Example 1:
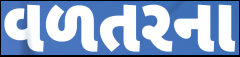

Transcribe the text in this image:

વળતરના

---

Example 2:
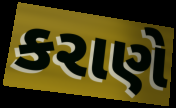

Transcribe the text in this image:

કરાણે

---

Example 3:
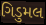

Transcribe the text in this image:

ગિડુમલ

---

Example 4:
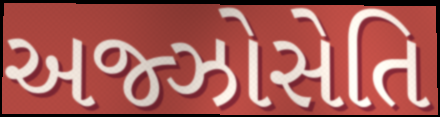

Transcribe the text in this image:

અજ્ઝોસેતિ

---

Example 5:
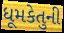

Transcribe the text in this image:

ધૂમકેતુની